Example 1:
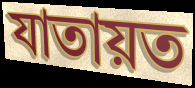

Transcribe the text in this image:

যাতায়ত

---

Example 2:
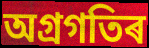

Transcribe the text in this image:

অগ্ৰগতিৰ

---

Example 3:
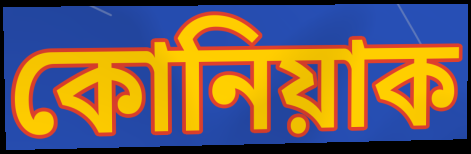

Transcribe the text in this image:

কোনিয়াক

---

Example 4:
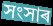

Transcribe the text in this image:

সংসাৰ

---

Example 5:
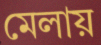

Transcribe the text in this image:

মেলায়